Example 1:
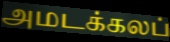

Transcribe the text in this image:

அமடக்கலப்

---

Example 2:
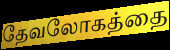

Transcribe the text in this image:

தேவலோகத்தை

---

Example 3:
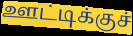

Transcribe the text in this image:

ஊட்டிக்குச்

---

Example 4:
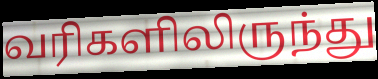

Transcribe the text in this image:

வரிகளிலிருந்து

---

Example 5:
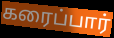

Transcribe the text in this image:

கரைப்பார்